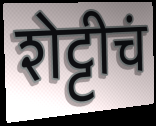
शेट्टीचं